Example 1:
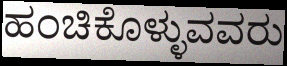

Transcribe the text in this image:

ಹಂಚಿಕೊಳ್ಳುವವರು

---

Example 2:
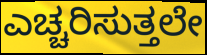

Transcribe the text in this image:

ಎಚ್ಚರಿಸುತ್ತಲೇ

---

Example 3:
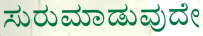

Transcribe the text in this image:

ಸುರುಮಾಡುವುದೇ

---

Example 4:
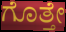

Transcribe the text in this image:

ಗೊತ್ತೇ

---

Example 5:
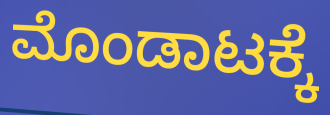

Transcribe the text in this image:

ಮೊಂಡಾಟಕ್ಕೆ